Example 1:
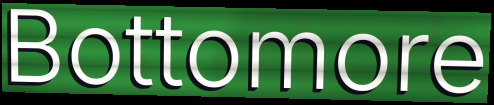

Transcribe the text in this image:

Bottomore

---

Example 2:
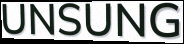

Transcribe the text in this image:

UNSUNG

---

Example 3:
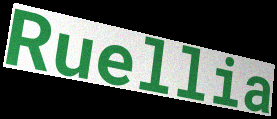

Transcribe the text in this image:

Ruellia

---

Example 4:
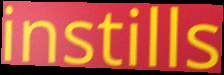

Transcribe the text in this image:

instills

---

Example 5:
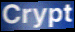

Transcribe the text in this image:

Crypt